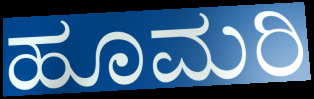
ಹೂಮರಿ